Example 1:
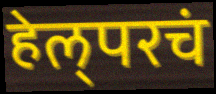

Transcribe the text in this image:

हेल्परचं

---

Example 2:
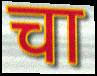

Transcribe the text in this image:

चा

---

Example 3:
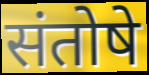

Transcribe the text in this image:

संतोषे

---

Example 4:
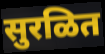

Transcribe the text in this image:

सुरळित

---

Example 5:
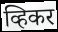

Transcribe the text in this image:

व्हिकर